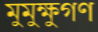
মুমুক্ষুগণ